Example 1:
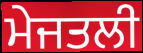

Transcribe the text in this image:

ਮੇਜਤਲੀ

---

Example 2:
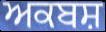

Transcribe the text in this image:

ਅਕਬਸ਼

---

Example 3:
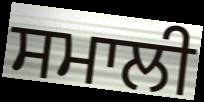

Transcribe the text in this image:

ਸਮਾਲੀ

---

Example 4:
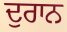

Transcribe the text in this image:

ਦੁਰਾਨ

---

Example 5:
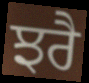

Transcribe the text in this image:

ਝਰੈ